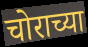
चोराच्या